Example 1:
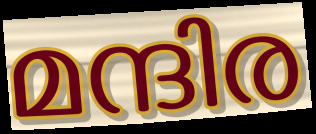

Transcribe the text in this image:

മന്ദിര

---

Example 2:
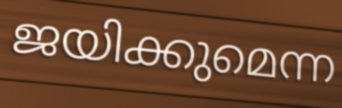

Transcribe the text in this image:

ജയിക്കുമെന്ന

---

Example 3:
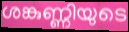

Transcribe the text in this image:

ശങ്കുണ്ണിയുടെ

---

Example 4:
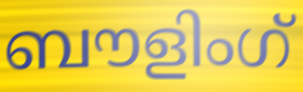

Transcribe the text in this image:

ബൗളിംഗ്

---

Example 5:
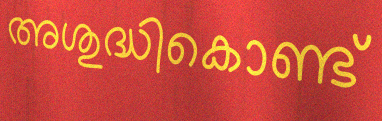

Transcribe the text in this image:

അശുദ്ധികൊണ്ട്